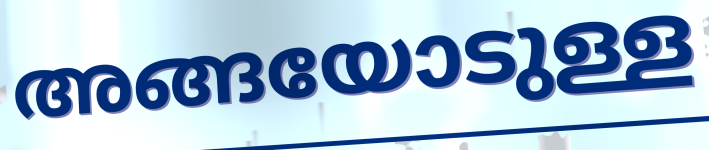
അങ്ങയോടുള്ള